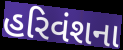
હરિવંશના